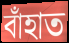
বাঁহাত